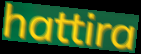
hattira